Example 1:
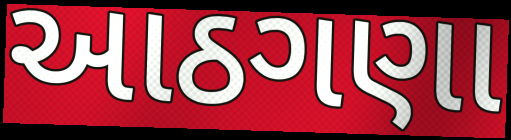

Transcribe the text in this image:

આઠગણા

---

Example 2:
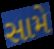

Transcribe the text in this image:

સામે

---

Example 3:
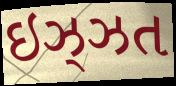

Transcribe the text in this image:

ઇઝ્ઝત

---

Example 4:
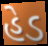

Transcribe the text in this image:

હેડ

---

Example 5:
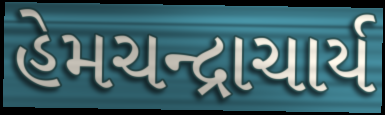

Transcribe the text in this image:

હેમચન્દ્રાચાર્ય